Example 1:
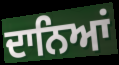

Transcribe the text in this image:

ਦਾਨਿਆਂ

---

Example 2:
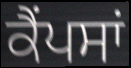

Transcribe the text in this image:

ਕੈਂਪਸਾਂ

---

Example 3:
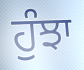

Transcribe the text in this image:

ਹੁੰਝਾ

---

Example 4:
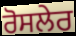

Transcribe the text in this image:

ਰੋਸਲੇਰ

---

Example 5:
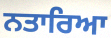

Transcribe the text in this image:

ਨਤਾਰਿਆ